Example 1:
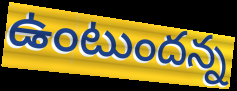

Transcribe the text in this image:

ఉంటుందన్న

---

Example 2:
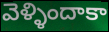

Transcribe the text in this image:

వెళ్ళిందాకా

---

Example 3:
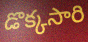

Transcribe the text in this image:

డొక్కసారి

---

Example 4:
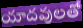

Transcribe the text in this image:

యాదవులతో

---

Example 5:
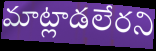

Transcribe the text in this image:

మాట్లాడలేరని